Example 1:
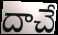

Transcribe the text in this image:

దాచే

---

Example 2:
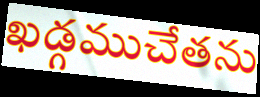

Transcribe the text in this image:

ఖడ్గముచేతను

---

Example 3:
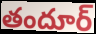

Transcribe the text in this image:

తందూర్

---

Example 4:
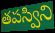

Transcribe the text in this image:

తపస్విని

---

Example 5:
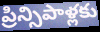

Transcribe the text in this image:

ప్రిన్సిపాళ్లకు